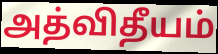
அத்விதீயம்